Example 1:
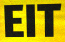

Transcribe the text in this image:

EIT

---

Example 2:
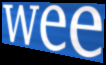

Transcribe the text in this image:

wee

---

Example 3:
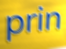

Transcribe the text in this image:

prin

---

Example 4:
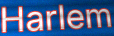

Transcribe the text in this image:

Harlem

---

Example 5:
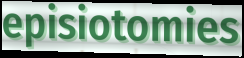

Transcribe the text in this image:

episiotomies